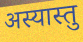
अस्यास्तु